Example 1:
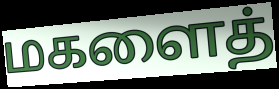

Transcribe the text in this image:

மகளைத்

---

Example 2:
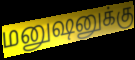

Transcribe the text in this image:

மனுஷனுக்கு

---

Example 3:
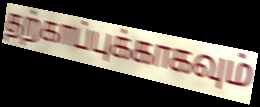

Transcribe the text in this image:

தற்காப்புக்காகவும்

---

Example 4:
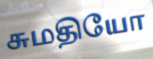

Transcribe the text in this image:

சுமதியோ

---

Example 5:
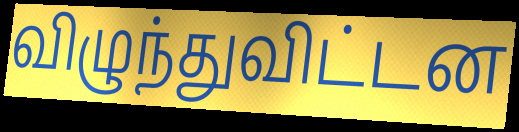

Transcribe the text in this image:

விழுந்துவிட்டன